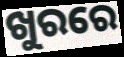
ଖୁରରେ